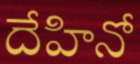
దేహినో